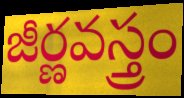
జీర్ణవస్త్రం